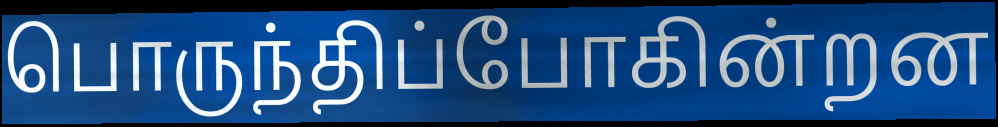
பொருந்திப்போகின்றன